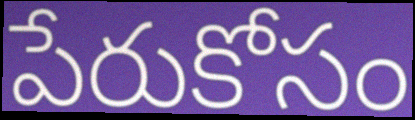
పేరుకోసం